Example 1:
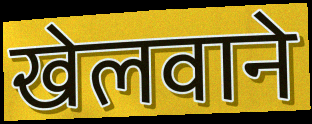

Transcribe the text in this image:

खेलवाने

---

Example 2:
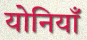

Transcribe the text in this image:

योनियाँ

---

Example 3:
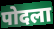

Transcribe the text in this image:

पोदला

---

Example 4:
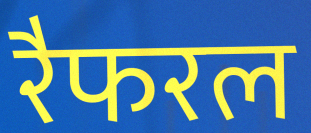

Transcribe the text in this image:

रैफरल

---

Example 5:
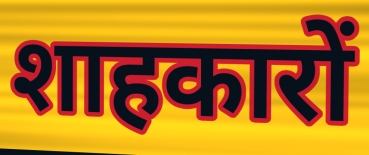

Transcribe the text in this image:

शाहकारों